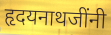
हृदयनाथजींनी